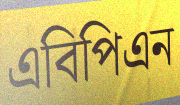
এবিপিএন